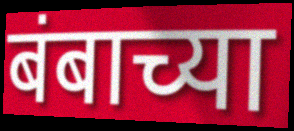
बंबाच्या